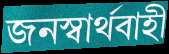
জনস্বার্থবাহী